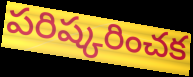
పరిష్కరించక